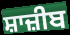
ਸ਼ਾਜ਼ੀਬ